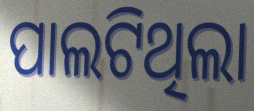
ପାଲଟିଥିଲା